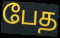
பேத